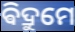
ଵିଦ୍ରୁମେ